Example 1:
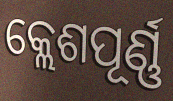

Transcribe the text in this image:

କ୍ଲେଶପୂର୍ଣ୍ଣ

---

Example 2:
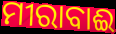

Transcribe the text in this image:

ମୀରାବାଈ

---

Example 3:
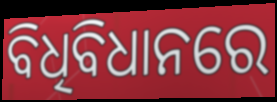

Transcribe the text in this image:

ବିଧିବିଧାନରେ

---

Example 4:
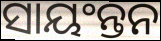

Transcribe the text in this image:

ସାୟଂନ୍ତନ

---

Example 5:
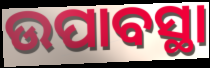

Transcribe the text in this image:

ଉପାବସ୍ଥା